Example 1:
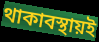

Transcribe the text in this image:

থাকাবস্থায়ই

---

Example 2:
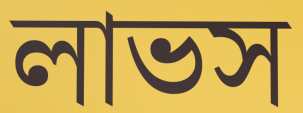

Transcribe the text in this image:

লাভস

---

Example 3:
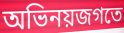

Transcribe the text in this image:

অভিনয়জগতে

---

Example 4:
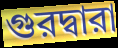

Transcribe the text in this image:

গুরদ্বারা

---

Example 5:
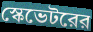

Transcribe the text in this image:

স্কেভেটরের